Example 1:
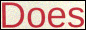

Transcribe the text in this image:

Does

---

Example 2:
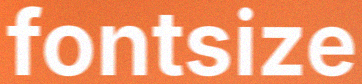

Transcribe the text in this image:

fontsize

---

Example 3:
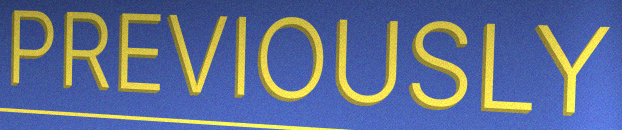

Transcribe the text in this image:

PREVIOUSLY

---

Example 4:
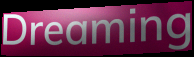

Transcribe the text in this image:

Dreaming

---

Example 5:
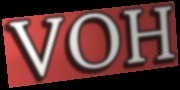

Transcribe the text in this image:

VOH